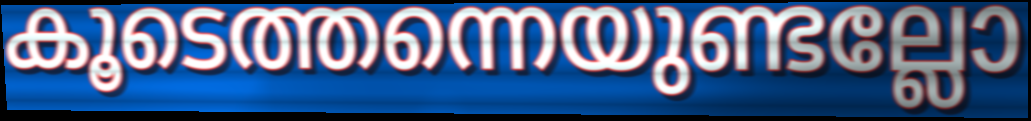
കൂടെത്തന്നെയുണ്ടല്ലോ